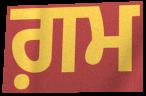
ਗ਼ਮ